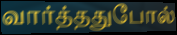
வார்த்ததுபோல்